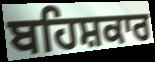
ਬਹਿਸ਼ਕਾਰ